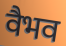
वैभव